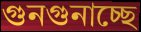
গুনগুনাচ্ছে